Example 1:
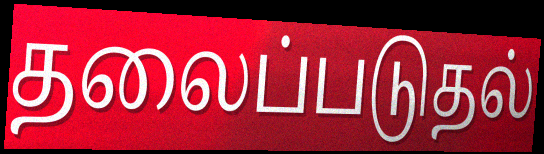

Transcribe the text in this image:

தலைப்படுதல்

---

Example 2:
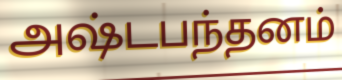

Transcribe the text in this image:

அஷ்டபந்தனம்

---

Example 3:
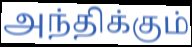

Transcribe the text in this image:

அந்திக்கும்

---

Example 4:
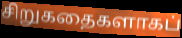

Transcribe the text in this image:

சிறுகதைகளாகப்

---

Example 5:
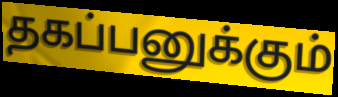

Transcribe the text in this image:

தகப்பனுக்கும்